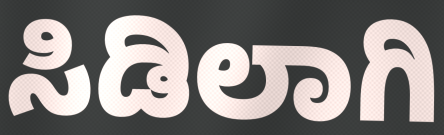
ಸಿಡಿಲಾಗಿ